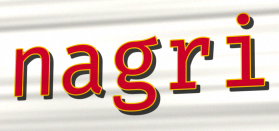
nagri